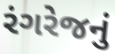
રંગરેજનું